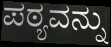
ಪಠ್ಯವನ್ನು